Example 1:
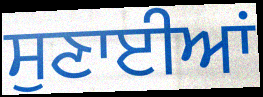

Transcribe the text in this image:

ਸੁਣਾਈਆਂ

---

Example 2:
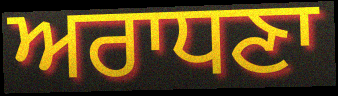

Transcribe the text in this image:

ਅਰਾਧਣਾ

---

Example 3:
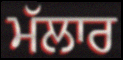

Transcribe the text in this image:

ਮੱਲਾਰ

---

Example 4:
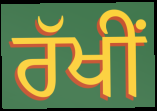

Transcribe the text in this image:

ਰੱਖੀਂ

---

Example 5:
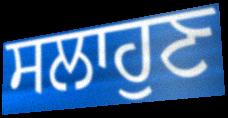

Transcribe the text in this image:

ਸਲਾਹੁਣ